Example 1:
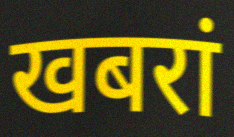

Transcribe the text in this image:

खबरां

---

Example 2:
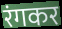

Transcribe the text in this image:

रंगकर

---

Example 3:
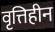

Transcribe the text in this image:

वृत्तिहीन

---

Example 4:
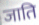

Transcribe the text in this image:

जाति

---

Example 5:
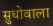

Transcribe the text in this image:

सुधोवाला